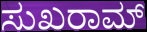
ಸುಖರಾಮ್